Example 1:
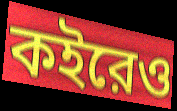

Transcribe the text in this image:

কইরেও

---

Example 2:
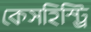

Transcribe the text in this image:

কেসহিস্ট্রি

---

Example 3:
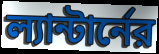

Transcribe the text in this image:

ল্যান্টার্নের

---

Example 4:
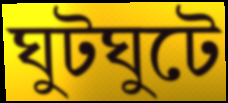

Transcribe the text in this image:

ঘুটঘুটে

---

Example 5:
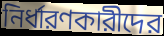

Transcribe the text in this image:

নির্ধারণকারীদের